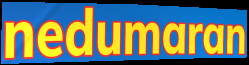
nedumaran